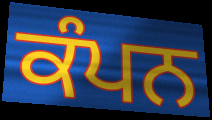
ਕੰਪਨ